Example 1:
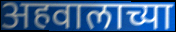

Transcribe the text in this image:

अहवालाच्या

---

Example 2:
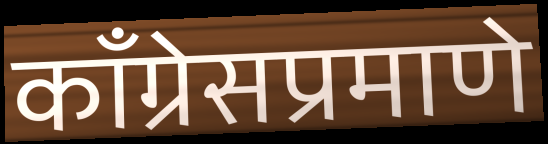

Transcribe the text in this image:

काँग्रेसप्रमाणे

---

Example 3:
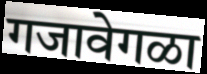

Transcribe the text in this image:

गजावेगळा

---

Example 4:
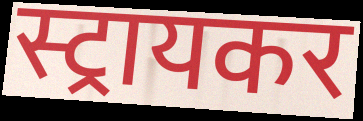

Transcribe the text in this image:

स्ट्रायकर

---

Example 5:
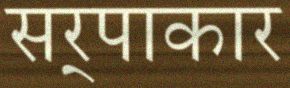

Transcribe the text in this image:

सर्पाकार